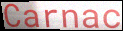
Carnac